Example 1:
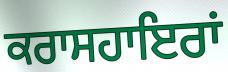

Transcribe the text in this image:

ਕਰਾਸਹਾਇਰਾਂ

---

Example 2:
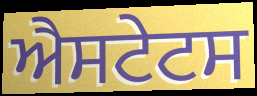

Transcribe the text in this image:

ਐਸਟੇਟਸ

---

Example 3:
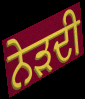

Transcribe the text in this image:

ਨੇੜਦੀ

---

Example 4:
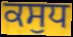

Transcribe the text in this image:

ਕਸੁਧ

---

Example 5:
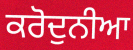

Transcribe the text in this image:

ਕਰੋਦੁਨੀਆ